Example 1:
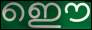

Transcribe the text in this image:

ഇൌ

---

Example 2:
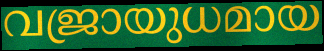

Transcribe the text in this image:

വജ്രായുധമായ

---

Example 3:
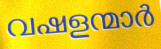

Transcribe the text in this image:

വഷളന്മാർ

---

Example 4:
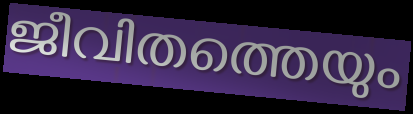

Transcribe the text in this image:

ജീവിതത്തെയും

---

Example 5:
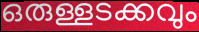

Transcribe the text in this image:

ഒരുള്ളടക്കവും